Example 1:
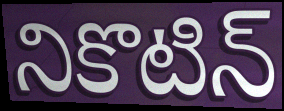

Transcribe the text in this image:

నికొటిన్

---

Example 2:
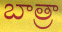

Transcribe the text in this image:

బాత్రా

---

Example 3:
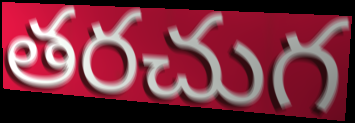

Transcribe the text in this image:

తరచుగ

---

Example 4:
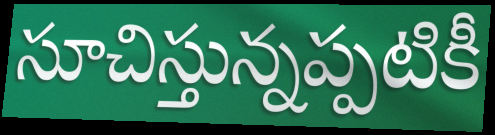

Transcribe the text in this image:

సూచిస్తున్నప్పటికీ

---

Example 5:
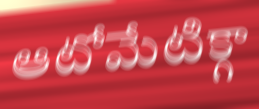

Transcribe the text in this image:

ఆటోమేటిక్గా